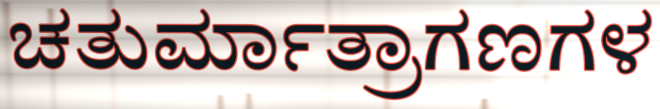
ಚತುರ್ಮಾತ್ರಾಗಣಗಳ